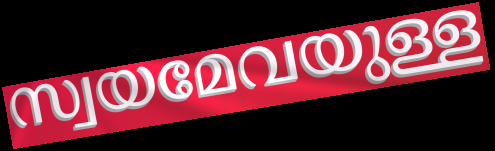
സ്വയമേവയുള്ള